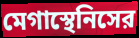
মেগাস্থেনিসের